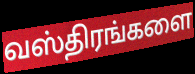
வஸ்திரங்களை